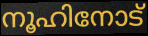
നൂഹിനോട്